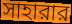
সাহারার